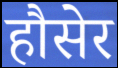
हौसेर